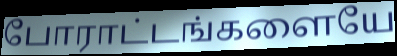
போராட்டங்களையே